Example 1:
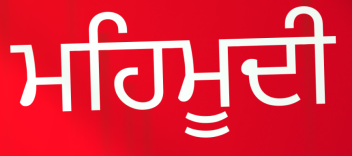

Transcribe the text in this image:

ਮਹਿਮੂਦੀ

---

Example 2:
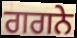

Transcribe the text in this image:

ਗਗਨੇ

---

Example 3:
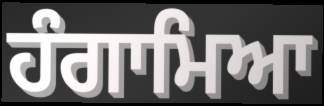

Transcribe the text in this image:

ਹੰਗਾਮਿਆ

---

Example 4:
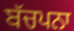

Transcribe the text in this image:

ਬੱਚਪਨਾ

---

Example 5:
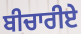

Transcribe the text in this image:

ਬੀਚਾਰੀਏ